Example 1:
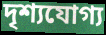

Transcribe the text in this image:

দৃশ্যযোগ্য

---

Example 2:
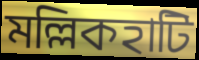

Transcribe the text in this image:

মল্লিকহাটি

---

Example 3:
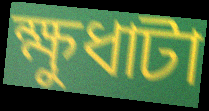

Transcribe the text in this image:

ক্ষুধাটা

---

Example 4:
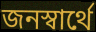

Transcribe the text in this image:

জনস্বার্থে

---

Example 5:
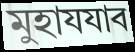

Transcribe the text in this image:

মুহাযযাব